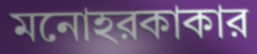
মনোহরকাকার